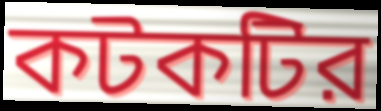
কটকটির